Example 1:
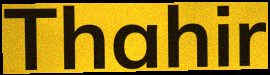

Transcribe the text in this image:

Thahir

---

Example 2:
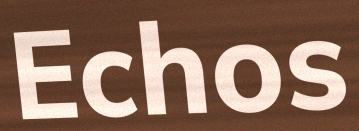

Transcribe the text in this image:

Echos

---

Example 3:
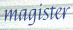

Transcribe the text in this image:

magister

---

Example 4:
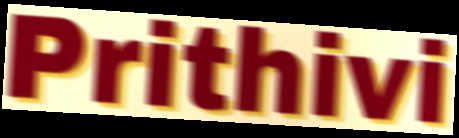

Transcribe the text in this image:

Prithivi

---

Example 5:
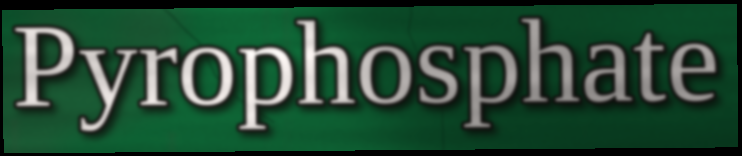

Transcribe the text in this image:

Pyrophosphate